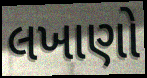
લખાણો